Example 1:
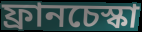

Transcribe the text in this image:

ফ্রানচেস্কা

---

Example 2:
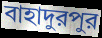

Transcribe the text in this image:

বাহাদুরপুর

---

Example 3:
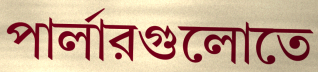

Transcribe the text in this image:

পার্লারগুলোতে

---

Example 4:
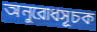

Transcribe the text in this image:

অনুরোধসূচক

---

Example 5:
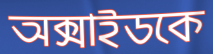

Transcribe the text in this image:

অক্সাইডকে